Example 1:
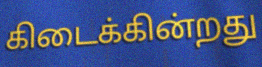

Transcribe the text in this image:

கிடைக்கின்றது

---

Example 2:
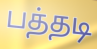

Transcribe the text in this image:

பத்தடி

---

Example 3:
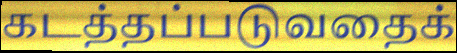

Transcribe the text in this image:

கடத்தப்படுவதைக்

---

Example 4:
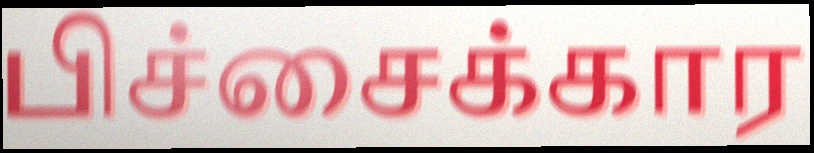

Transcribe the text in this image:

பிச்சைக்கார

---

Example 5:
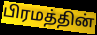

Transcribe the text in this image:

பிரமத்தின்